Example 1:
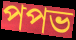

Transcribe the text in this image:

পপভ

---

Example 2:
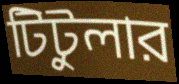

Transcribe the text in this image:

টিটুলার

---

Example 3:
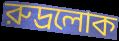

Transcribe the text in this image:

রুদ্রলোক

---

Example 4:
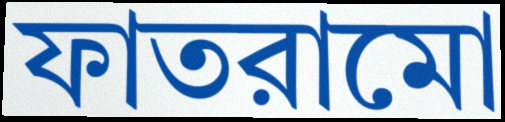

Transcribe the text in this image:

ফাতরামো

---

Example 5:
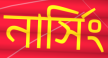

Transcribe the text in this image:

নার্সিং